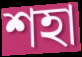
শহা